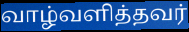
வாழ்வளித்தவர்